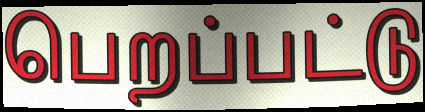
பெறப்பட்டு